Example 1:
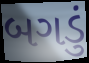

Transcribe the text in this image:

બગડું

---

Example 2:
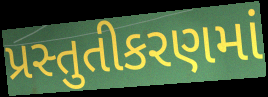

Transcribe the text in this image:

પ્રસ્તુતીકરણમાં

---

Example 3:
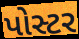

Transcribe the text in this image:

પોસ્ટર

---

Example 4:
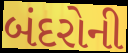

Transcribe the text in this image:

બંદરોની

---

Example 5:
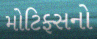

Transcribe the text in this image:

મોટિફ્સનો